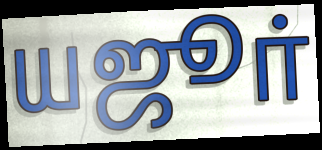
யஜூர்